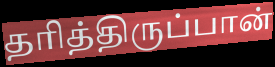
தரித்திருப்பான்